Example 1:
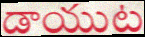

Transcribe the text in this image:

డాయుట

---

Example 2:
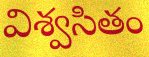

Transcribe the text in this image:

విశ్వసితం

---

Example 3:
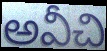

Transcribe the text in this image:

అవీచి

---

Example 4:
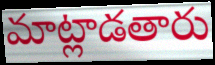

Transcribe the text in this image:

మాట్లాడతారు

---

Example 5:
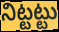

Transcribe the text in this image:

నిట్టట్టు